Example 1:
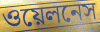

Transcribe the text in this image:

ওয়েলনেস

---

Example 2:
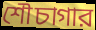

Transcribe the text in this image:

শৌচাগার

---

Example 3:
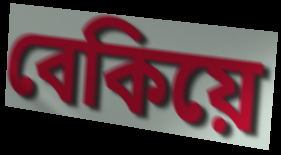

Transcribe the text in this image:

বেকিয়ে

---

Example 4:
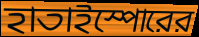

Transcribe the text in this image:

হাতাইস্পোরের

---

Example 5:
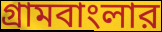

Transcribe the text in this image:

গ্রামবাংলার